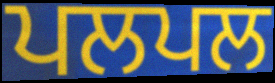
ਪਲਪਲ